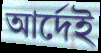
আর্দেই